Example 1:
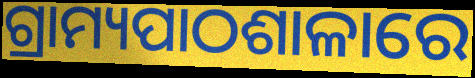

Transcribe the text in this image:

ଗ୍ରାମ୍ୟପାଠଶାଳାରେ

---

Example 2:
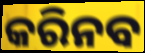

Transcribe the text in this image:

କରିନବ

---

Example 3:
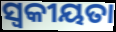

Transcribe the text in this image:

ସ୍ଵକୀୟତା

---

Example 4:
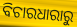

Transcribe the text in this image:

ବିଚାରଧାରାରୁ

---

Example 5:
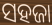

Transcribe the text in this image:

ସହଜା